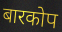
बारकोप